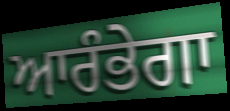
ਆਰੰਭੇਗਾ